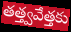
తత్త్వవేత్తకు